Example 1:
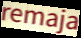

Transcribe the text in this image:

remaja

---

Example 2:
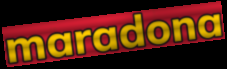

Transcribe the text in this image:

maradona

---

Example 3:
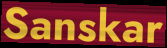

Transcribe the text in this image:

Sanskar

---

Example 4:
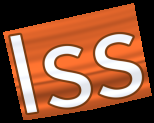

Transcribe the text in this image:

Iss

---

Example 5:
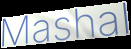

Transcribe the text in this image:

Mashal